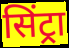
सिंट्रा